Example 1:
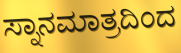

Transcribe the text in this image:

ಸ್ನಾನಮಾತ್ರದಿಂದ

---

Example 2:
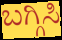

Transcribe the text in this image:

ಬಗ್ಗಿಸಿ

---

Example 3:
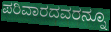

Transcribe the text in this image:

ಪರಿವಾರದವರನ್ನೂ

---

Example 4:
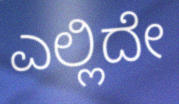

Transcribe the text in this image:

ಎಲ್ಲಿದೇ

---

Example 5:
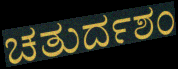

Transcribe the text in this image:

ಚತುರ್ದಶಂ